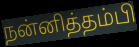
நன்னித்தம்பி